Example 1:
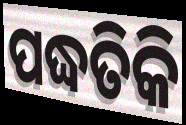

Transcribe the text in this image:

ପଦ୍ଧତିକି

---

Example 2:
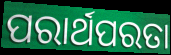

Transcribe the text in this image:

ପରାର୍ଥପରତା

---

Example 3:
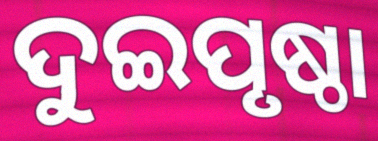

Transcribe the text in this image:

ଦୁଇପୃଷ୍ଠା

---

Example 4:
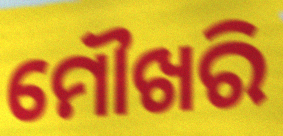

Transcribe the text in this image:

ମୌଖରି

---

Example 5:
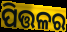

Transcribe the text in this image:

ପିତ୍ତଳର